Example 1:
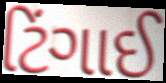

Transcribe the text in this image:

ટિંગાઈ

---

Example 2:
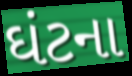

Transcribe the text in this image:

ઘંટના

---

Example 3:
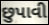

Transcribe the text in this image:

છુપાવી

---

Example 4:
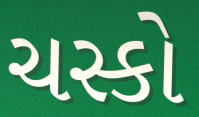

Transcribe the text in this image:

ચસ્કો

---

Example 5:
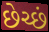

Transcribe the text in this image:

છેચ્છં